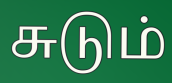
சுடும்